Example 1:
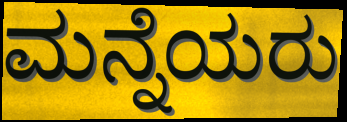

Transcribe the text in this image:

ಮನ್ನೆಯರು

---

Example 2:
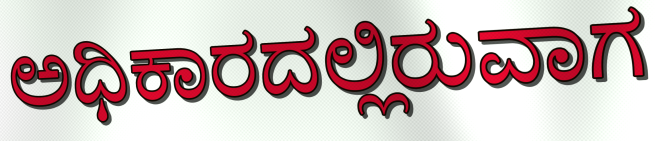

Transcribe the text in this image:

ಅಧಿಕಾರದಲ್ಲಿರುವಾಗ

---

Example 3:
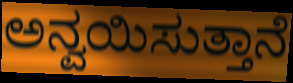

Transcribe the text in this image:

ಅನ್ವಯಿಸುತ್ತಾನೆ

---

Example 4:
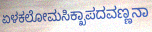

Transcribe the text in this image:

ಏಳಕಲೋಮಸಿಕ್ಖಾಪದವಣ್ಣನಾ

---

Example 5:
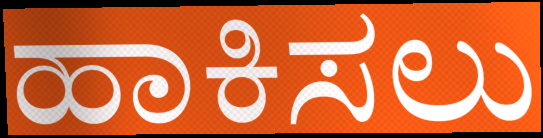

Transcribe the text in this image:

ಹಾಕಿಸಲು